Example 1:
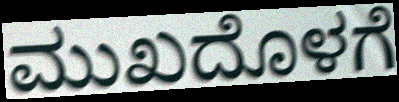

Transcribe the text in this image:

ಮುಖದೊಳಗೆ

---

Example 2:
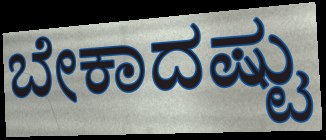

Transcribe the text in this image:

ಬೇಕಾದಷ್ಟು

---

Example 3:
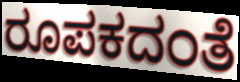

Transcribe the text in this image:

ರೂಪಕದಂತೆ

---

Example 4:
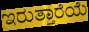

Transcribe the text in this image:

ಇರುತ್ತಾರೆಯೆ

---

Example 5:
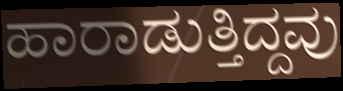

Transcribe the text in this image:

ಹಾರಾಡುತ್ತಿದ್ದವು